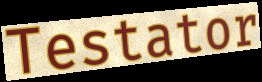
Testator